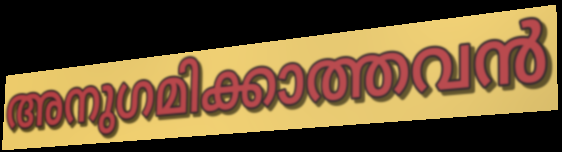
അനുഗമിക്കാത്തവൻ